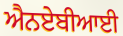
ਐਨਏਬੀਆਈ